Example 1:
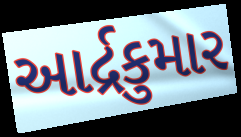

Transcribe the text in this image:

આર્દ્રકુમાર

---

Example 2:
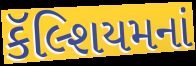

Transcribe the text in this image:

કૅલ્શિયમનાં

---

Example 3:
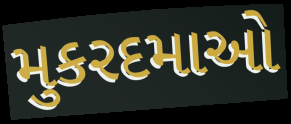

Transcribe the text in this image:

મુકરદમાઓ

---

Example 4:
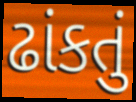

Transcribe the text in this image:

ઢાંકતું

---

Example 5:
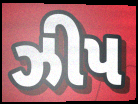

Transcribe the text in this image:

ઝીપ